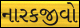
નારકજીવો